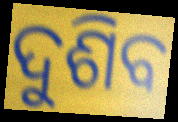
ଦୁଶିବ